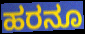
ಹರನೂ